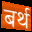
बर्थ